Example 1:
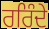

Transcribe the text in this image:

ਰਰਿੰਦੇ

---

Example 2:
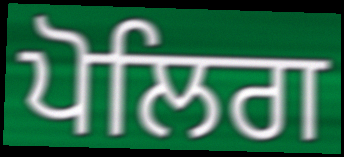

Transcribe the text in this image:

ਪੋਲਿਗ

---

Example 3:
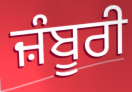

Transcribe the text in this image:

ਜ਼ੰਬੂਰੀ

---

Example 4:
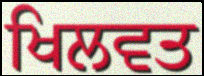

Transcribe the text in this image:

ਖਿਲਵਤ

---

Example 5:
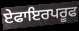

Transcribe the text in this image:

ਏਫਾਇਰਪਰੂਫ